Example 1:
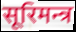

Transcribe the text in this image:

सूरिमन्त्र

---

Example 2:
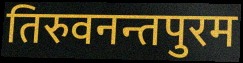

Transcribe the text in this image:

तिरुवनन्तपुरम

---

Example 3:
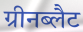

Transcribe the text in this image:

ग्रीनब्लैट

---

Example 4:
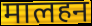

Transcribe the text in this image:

मालहन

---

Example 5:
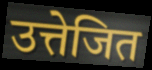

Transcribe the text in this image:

उत्तेजित